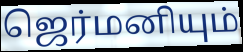
ஜெர்மனியும்